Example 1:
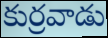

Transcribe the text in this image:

కుర్రవాడు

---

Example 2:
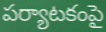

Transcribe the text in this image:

పర్యాటకంపై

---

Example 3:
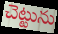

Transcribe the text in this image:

చెట్టును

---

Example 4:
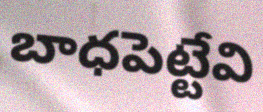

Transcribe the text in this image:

బాధపెట్టేవి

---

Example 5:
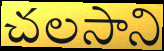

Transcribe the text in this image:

చలసాని